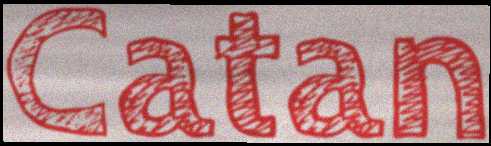
Catan